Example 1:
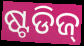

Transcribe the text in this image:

ଷ୍ଟଡିଜ୍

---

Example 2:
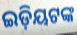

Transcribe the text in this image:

ଇଡ଼ିୟଟଙ୍କ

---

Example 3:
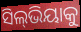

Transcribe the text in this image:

ସିଲ୍‍ଭିୟାକୁ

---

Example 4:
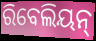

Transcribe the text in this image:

ରିବେଲିୟନ୍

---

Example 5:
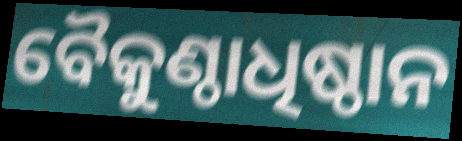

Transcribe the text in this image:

ବୈକୁଣ୍ଠାଧିଷ୍ଠାନ